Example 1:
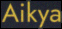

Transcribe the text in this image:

Aikya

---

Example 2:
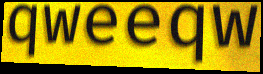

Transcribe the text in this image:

qweeqw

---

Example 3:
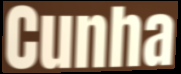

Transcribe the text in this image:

Cunha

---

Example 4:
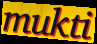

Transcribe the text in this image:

mukti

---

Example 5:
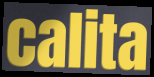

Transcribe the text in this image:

calita